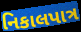
નિકાલપાત્ર